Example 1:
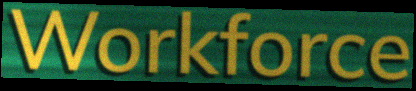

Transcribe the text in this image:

Workforce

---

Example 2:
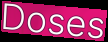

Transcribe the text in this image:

Doses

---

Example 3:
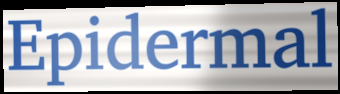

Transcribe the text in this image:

Epidermal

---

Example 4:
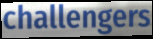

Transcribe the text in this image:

challengers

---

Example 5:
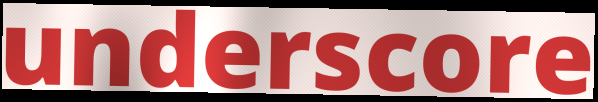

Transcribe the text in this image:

underscore